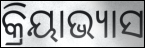
କ୍ରିୟାଭ୍ୟାସ